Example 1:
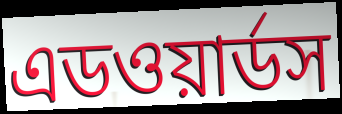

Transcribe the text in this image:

এডওয়ার্ডস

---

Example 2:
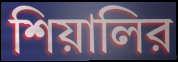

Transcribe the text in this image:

শিয়ালির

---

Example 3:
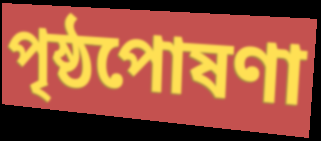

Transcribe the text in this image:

পৃষ্ঠপোষণা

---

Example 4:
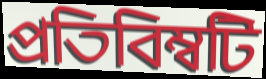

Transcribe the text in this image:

প্রতিবিম্বটি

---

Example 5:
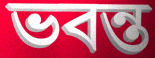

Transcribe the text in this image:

ভবন্ত